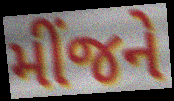
મીંજને